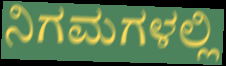
ನಿಗಮಗಳಲ್ಲಿ